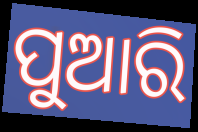
ପୁଆରି